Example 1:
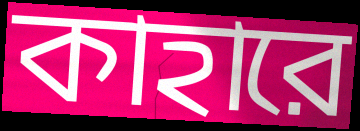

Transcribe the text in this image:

কাহারে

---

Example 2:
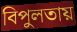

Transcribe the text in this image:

বিপুলতায়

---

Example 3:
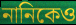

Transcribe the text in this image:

নানিকেও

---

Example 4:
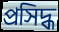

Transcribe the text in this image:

প্রসিদ্ধ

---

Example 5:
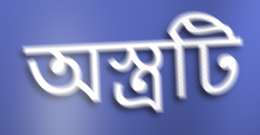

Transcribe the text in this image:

অস্ত্রটি